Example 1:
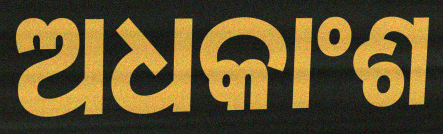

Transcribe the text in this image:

ଅଧକାଂଶ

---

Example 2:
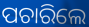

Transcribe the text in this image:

ପଚାରିଲେ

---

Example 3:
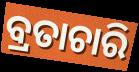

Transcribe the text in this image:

ବ୍ରତାଚାରି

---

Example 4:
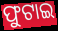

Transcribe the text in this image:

ଫୁଟାଇ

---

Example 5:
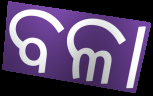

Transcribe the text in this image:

ବଳା